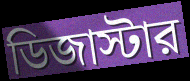
ডিজাস্টার